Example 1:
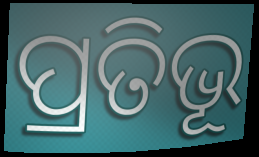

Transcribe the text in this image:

ପ୍ରତିଭୂ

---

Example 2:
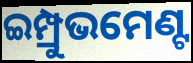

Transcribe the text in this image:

ଇମ୍ପ୍ରୁଭମେଣ୍ଟ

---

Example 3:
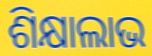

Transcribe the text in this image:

ଶିକ୍ଷାଲାଭ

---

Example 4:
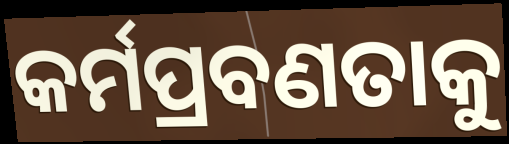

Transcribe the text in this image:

କର୍ମପ୍ରବଣତାକୁ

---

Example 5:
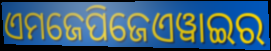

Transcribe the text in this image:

ଏମଜେପିଜେଏୱାଇର